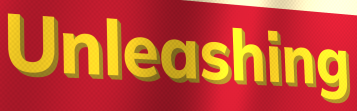
Unleashing